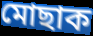
মোছাক